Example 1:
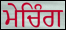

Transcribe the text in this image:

ਮੇਚਿੰਗ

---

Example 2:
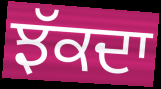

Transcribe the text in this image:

ਝੱਕਦਾ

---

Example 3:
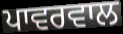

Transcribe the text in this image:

ਪਾਵਰਵਾਲ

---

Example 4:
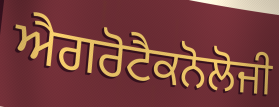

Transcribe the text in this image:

ਐਗਰੋਟੈਕਨੋਲੋਜੀ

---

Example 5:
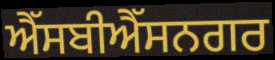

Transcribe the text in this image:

ਐੱਸਬੀਐੱਸਨਗਰ